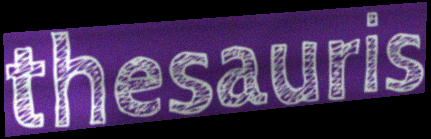
thesauris